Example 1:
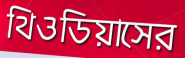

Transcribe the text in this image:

থিওডিয়াসের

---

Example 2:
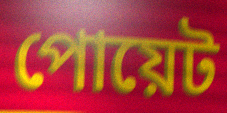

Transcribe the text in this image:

পোয়েট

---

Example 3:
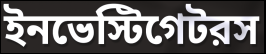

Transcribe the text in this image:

ইনভেস্টিগেটরস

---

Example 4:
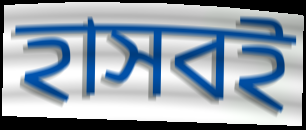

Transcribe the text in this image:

হাসবই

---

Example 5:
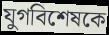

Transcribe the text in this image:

যুগবিশেষকে